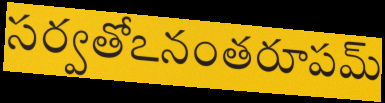
సర్వతోఽనంతరూపమ్